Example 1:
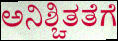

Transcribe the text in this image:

ಅನಿಶ್ಚಿತತೆಗೆ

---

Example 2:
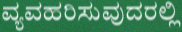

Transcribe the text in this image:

ವ್ಯವಹರಿಸುವುದರಲ್ಲಿ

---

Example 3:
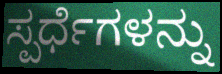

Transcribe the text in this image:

ಸ್ಪರ್ಧೆಗಳನ್ನು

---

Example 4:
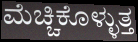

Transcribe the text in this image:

ಮೆಚ್ಚಿಕೊಳ್ಳುತ್ತ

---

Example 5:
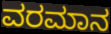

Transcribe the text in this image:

ವರಮಾನ